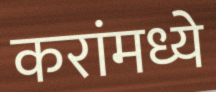
करांमध्ये